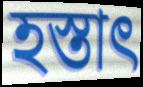
হস্তাৎ